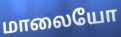
மாலையோ